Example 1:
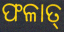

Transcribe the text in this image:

ଫଳାତ୍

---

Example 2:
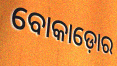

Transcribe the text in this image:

ବୋକାଡ଼ୋର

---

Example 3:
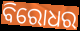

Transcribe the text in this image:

ବିରୋଧର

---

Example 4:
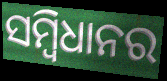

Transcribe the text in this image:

ସମ୍ବିଧାନର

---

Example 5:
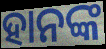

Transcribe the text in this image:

ହାନଙ୍କ